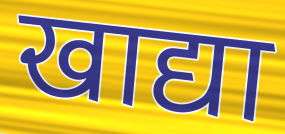
खाद्या